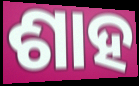
ଶାହ